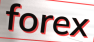
forex